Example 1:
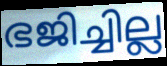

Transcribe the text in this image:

ഭജിച്ചില്ല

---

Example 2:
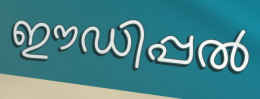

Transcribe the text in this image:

ഈഡിപ്പൽ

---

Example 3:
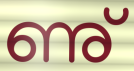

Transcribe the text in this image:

ണു്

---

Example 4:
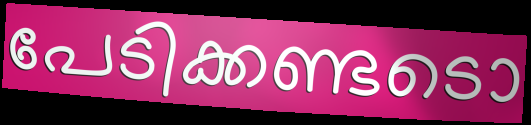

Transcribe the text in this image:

പേടിക്കണ്ടടൊ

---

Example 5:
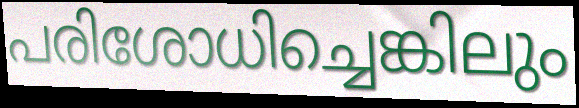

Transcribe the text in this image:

പരിശോധിച്ചെങ്കിലും